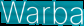
Warba